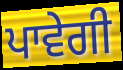
ਪਾਵੇਗੀ